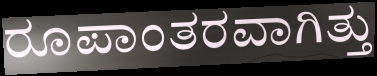
ರೂಪಾಂತರವಾಗಿತ್ತು